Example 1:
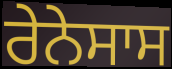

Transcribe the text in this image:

ਰੇਨੇਸਾਸ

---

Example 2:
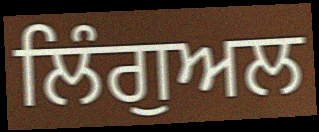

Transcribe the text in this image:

ਲਿੰਗੁਅਲ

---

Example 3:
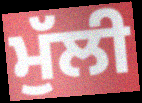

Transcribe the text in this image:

ਮੁੱਲੀ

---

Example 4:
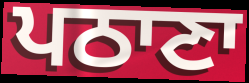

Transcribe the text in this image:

ਪਠਾਣਾ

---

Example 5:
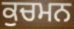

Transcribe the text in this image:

ਕੁਚਮਨ